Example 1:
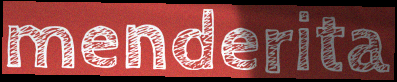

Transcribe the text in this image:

menderita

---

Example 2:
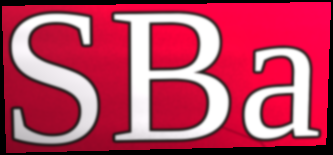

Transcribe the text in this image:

SBa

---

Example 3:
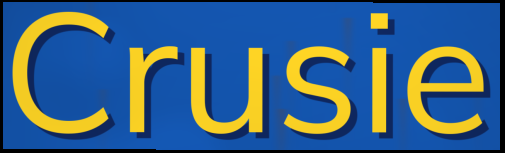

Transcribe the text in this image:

Crusie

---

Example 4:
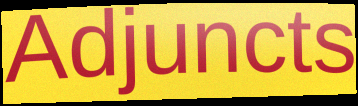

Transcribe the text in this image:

Adjuncts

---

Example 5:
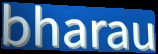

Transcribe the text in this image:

bharau